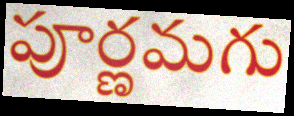
పూర్ణమగు